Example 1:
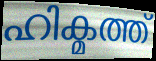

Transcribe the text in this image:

ഹിക്മത്ത്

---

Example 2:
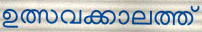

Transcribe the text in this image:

ഉത്സവക്കാലത്ത്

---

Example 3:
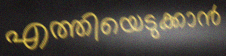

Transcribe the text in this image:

എത്തിയെടുക്കാൻ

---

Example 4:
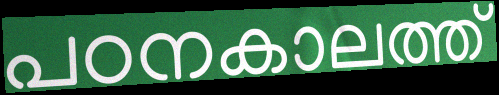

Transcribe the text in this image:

പഠനകാലത്ത്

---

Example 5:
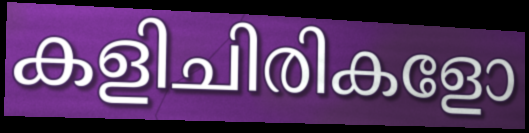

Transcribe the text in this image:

കളിചിരികളോ